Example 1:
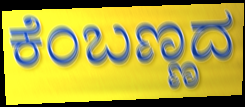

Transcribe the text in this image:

ಕೆಂಬಣ್ಣದ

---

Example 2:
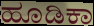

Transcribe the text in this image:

ಹೂಡಿಕಾ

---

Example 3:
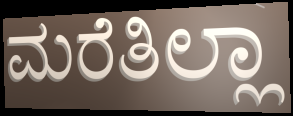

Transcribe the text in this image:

ಮರೆತಿಲ್ಲಾ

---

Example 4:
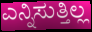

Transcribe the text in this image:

ಎನ್ನಿಸುತ್ತಿಲ್ಲ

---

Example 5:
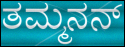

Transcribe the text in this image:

ತಮ್ಮನನ್